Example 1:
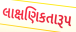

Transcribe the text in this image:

લાક્ષણિકતારૂપ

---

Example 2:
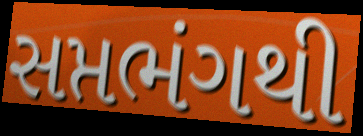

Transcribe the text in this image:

સપ્તભંગથી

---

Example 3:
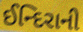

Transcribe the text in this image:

ઈન્દિરાની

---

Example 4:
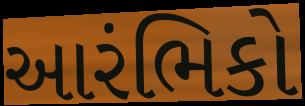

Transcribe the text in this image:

આરંભિકો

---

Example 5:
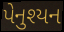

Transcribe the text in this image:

પેનુશ્યન